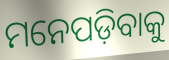
ମନେପଡ଼ିବାକୁ